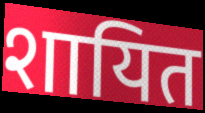
शायित